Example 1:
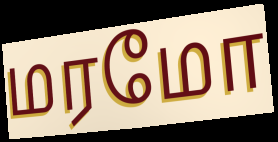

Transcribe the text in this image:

மரமோ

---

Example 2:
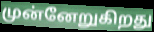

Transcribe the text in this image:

முன்னேறுகிறது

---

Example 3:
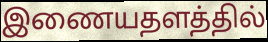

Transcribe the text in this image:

இணையதளத்தில்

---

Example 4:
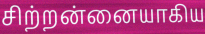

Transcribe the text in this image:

சிற்றன்னையாகிய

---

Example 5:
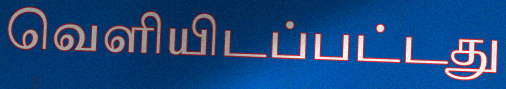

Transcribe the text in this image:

வெளியிடப்பட்டது